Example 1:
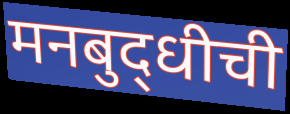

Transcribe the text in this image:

मनबुद्धीची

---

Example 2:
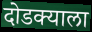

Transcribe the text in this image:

दोडक्याला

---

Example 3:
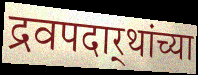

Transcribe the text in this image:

द्रवपदार्थांच्या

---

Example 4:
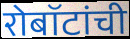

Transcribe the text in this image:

रोबॉटांची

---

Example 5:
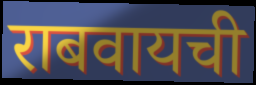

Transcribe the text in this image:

राबवायची